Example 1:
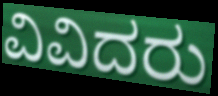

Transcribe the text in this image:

ವಿವಿದರು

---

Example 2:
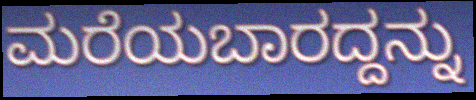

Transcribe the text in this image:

ಮರೆಯಬಾರದ್ದನ್ನು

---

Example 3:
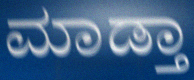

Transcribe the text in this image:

ಮಾಡ್ತಾ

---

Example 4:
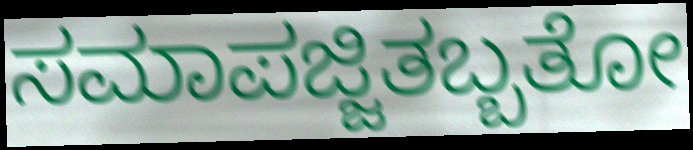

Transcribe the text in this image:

ಸಮಾಪಜ್ಜಿತಬ್ಬತೋ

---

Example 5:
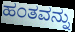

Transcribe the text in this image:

ಹಂತವನ್ನು